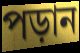
পড়ান